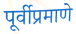
पूर्वीप्रमाणे